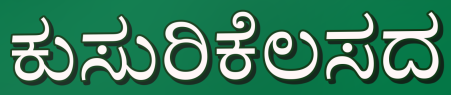
ಕುಸುರಿಕೆಲಸದ